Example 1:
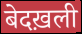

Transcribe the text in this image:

बेदख़ली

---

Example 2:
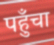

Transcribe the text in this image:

पहुँचा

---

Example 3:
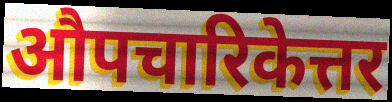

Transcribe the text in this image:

औपचारिकेत्तर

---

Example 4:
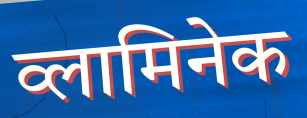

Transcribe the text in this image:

व्लामिनेक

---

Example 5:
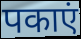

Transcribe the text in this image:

पकाएं